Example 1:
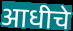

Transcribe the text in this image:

आधीचे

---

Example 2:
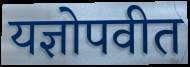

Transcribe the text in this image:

यज्ञोपवीत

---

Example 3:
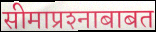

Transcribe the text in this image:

सीमाप्रश्नाबाबत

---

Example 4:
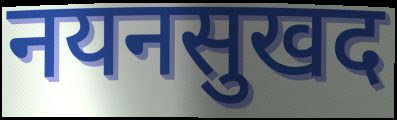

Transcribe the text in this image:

नयनसुखद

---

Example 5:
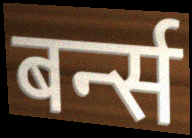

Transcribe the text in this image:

बर्न्स